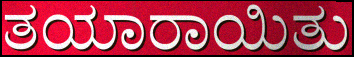
ತಯಾರಾಯಿತು